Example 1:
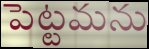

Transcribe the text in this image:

పెట్టమను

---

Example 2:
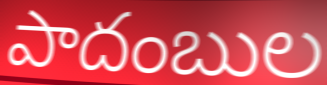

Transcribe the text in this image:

పాదంబుల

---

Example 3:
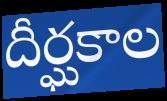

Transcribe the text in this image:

దీర్ఘకాల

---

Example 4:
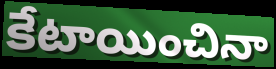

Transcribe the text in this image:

కేటాయించినా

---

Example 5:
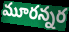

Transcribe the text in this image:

మూరన్నర